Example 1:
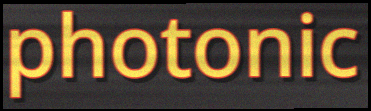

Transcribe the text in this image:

photonic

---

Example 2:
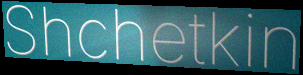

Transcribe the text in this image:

Shchetkin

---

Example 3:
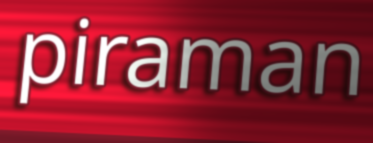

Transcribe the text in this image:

piraman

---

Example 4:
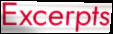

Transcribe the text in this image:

Excerpts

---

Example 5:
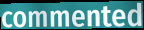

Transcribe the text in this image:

commented